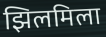
झिलमिला